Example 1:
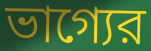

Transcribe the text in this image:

ভাগ্যের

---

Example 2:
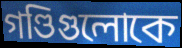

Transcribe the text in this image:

গণ্ডিগুলোকে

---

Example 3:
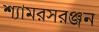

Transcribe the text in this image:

শ্যামরসরঞ্জন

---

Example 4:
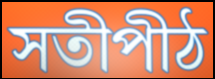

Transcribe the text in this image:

সতীপীঠ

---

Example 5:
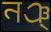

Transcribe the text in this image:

নঞ্